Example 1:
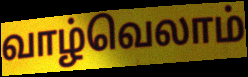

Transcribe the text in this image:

வாழ்வெலாம்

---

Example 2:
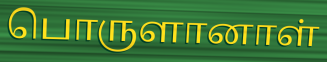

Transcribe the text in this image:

பொருளானாள்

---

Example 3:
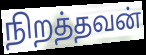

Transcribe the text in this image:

நிறத்தவன்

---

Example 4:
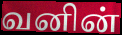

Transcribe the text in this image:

வனின்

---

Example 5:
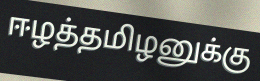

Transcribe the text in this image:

ஈழத்தமிழனுக்கு